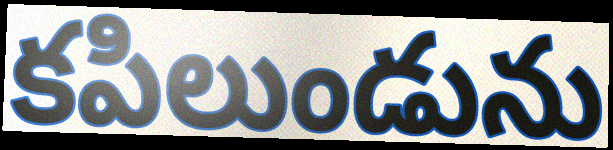
కపిలుండును